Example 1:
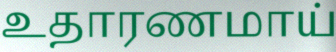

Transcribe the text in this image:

உதாரணமாய்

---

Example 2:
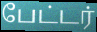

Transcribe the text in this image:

பேட்டர்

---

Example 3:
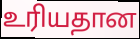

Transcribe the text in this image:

உரியதான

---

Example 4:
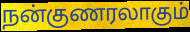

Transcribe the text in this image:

நன்குணரலாகும்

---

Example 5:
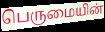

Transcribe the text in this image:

பெருமையின்